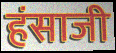
हंसाजी